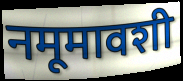
नमूमावशी